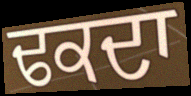
ਢਕਦਾ